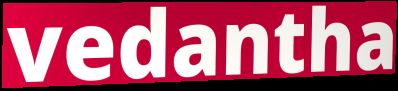
vedantha